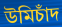
উমিচাঁদ